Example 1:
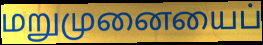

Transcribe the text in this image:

மறுமுனையைப்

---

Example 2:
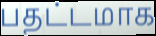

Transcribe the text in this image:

பதட்டமாக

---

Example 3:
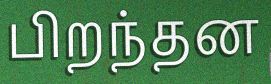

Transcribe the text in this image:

பிறந்தன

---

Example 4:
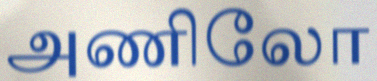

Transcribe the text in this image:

அணிலோ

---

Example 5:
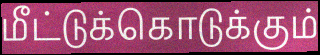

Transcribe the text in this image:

மீட்டுக்கொடுக்கும்